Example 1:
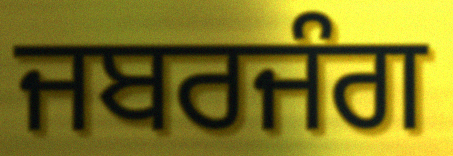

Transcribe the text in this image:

ਜਬਰਜੰਗ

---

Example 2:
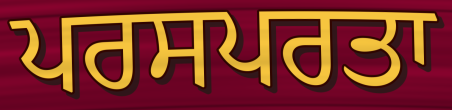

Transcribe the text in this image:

ਪਰਸਪਰਤਾ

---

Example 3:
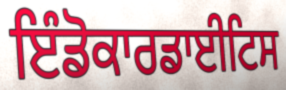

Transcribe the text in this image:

ਇੰਡੋਕਾਰਡਾਈਟਿਸ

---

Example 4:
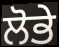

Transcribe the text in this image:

ਲੋਭੇ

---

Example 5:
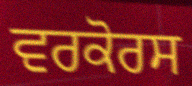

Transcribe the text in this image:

ਵਰਕੋਰਸ